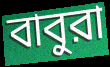
বাবুরা